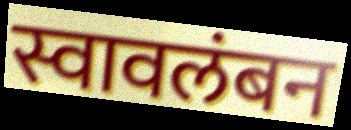
स्वावलंबन